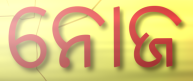
ନୋଜ